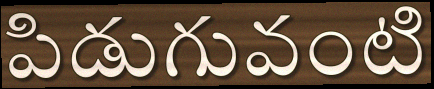
పిడుగువంటి